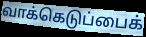
வாக்கெடுப்பைக்